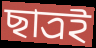
ছাত্ৰই